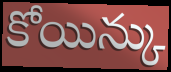
కోయిన్కు